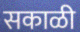
सकाळी